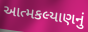
આત્મકલ્યાણનું